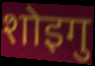
शोइगु